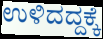
ಉಳಿದದ್ದಕ್ಕೆ